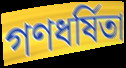
গণধর্ষিতা